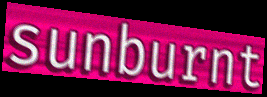
sunburnt